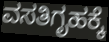
ವಸತಿಗೃಹಕ್ಕೆ